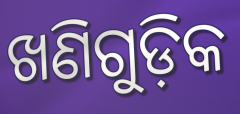
ଖଣିଗୁଡ଼ିକ